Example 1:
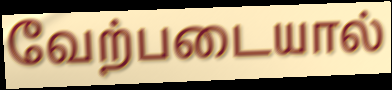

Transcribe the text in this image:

வேற்படையால்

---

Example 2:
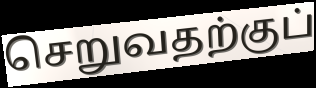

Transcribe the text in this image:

செறுவதற்குப்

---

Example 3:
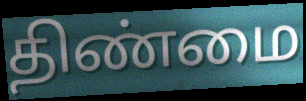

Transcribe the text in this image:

திண்மை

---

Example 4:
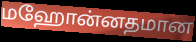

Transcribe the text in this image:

மஹோன்னதமான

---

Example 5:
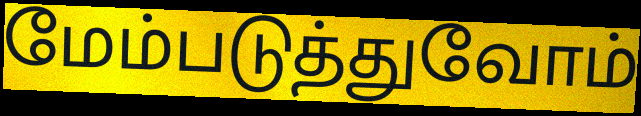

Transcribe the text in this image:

மேம்படுத்துவோம்